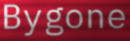
Bygone